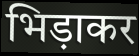
भिड़ाकर